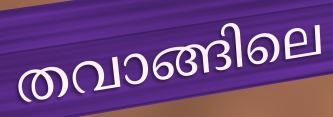
തവാങ്ങിലെ